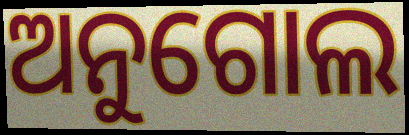
ଅନୁଗୋଲ